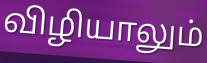
விழியாலும்